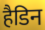
हैडिन